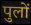
पुलों